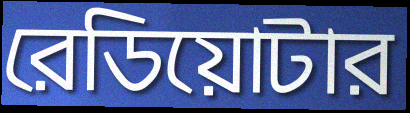
রেডিয়োটার